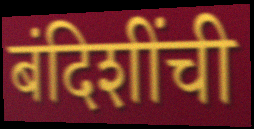
बंदिशींची